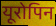
यूरोपिन